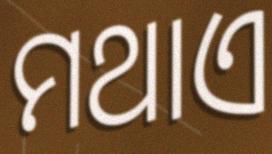
ମଥାଏ